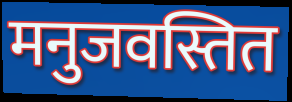
मनुजवस्तित